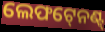
ଲେଫଟ୍‍ନେଣ୍ଟ୍